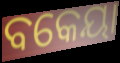
ବକେୟା